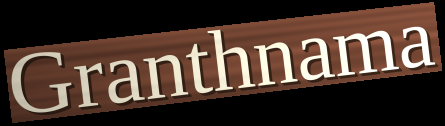
Granthnama